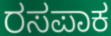
ರಸಪಾಕ